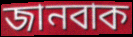
জানবাক